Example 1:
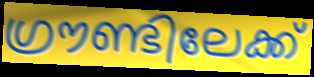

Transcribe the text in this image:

ഗ്രൗണ്ടിലേക്ക്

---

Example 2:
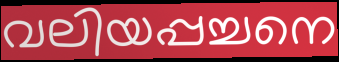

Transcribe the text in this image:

വലിയപ്പച്ചനെ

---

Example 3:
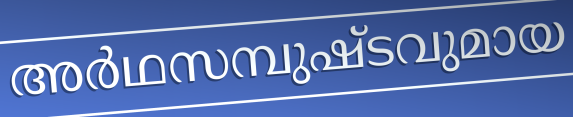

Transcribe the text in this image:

അർഥസമ്പുഷ്ടവുമായ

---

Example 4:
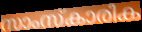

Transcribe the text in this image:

സാംസ്‌കാരിക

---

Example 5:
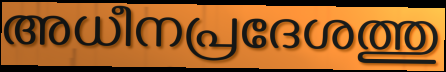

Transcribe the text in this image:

അധീനപ്രദേശത്തു